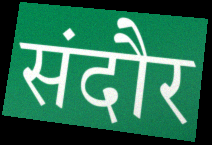
संदौर